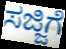
ಸಜ್ಜಿಗೆ